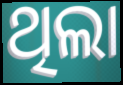
ଥିଲା